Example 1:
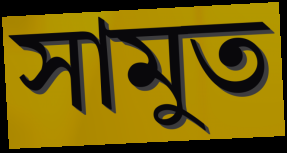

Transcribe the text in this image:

সামুত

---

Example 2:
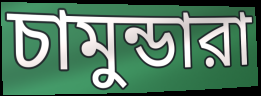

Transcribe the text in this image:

চামুন্ডারা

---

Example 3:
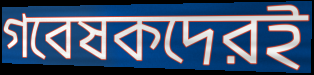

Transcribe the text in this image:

গবেষকদেরই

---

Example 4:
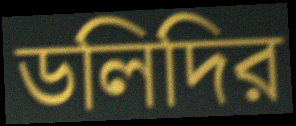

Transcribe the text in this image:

ডলিদির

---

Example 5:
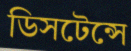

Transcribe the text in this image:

ডিসটেন্সে